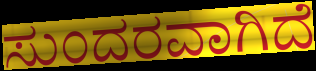
ಸುಂದರವಾಗಿದೆ